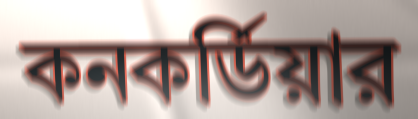
কনকর্ডিয়ার